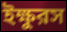
ইক্ষুরস